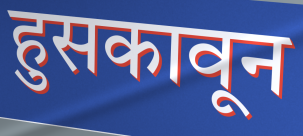
हुसकावून